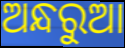
ଅନ୍ଧରୁଆ